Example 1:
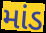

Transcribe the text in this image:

માંડ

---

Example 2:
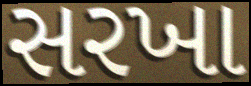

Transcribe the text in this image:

સરખા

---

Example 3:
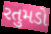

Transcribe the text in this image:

રતુમડો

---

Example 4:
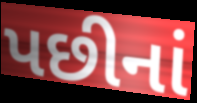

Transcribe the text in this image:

પછીનાં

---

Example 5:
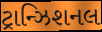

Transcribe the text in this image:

ટ્રાન્ઝિશનલ